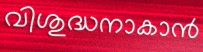
വിശുദ്ധനാകാൻ